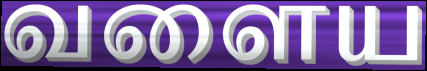
வளைய